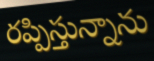
రప్పిస్తున్నాను